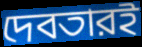
দেবতারই